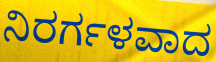
ನಿರರ್ಗಳವಾದ